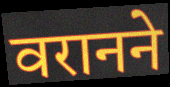
वरानने